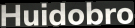
Huidobro